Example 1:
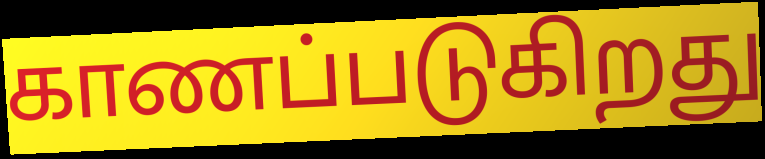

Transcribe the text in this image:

காணப்படுகிறது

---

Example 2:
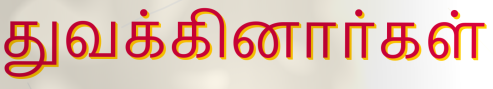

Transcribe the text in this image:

துவக்கினார்கள்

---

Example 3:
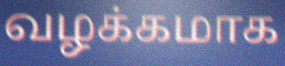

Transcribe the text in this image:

வழக்கமாக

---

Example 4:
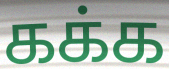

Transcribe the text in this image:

கக்க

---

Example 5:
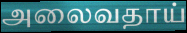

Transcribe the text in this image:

அலைவதாய்